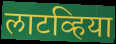
लाटव्हिया